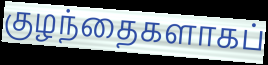
குழந்தைகளாகப்